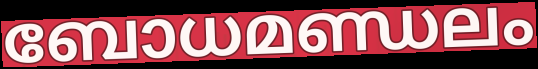
ബോധമണ്ഡലം